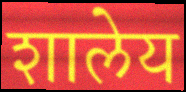
शालेय